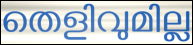
തെളിവുമില്ല